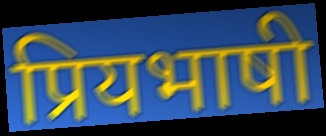
प्रियभाषी